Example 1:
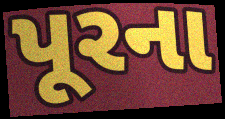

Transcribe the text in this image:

પૂરના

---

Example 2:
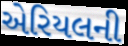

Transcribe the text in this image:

એરિયલની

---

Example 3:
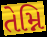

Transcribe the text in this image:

તેમ્નિ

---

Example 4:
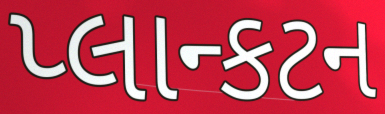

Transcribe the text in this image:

પ્લાન્કટન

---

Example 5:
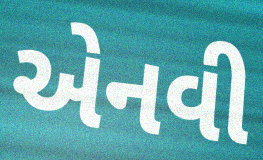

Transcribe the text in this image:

એનવી